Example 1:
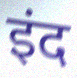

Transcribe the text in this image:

इंद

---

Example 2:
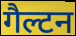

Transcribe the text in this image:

गैल्टन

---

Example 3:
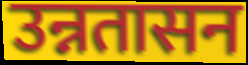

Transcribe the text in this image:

उन्नतासन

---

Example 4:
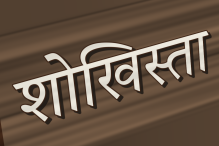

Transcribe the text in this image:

शोखिस्ता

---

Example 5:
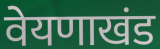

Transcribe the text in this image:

वेयणाखंड